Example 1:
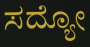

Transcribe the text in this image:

ಸದ್ಯೋ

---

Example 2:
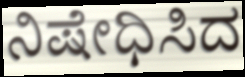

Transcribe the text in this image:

ನಿಷೇಧಿಸಿದ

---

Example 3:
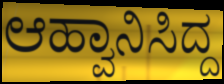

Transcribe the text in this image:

ಆಹ್ವಾನಿಸಿದ್ದ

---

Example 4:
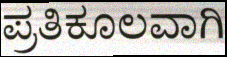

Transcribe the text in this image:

ಪ್ರತಿಕೂಲವಾಗಿ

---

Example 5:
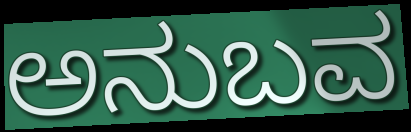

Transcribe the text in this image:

ಅನುಬವ